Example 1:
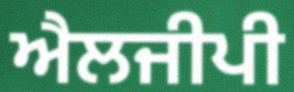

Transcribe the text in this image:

ਐਲਜੀਪੀ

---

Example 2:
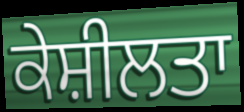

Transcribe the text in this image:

ਕੇਸ਼ੀਲਤਾ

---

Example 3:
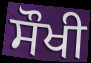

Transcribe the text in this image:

ਸੌਖੀ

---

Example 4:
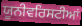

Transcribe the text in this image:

ਯੂਨੀਵਰਿਸਟੀਆਂ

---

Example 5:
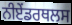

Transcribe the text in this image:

ਨੀਏਂਡਰਥਲਸ